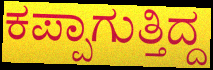
ಕಪ್ಪಾಗುತ್ತಿದ್ದ